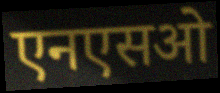
एनएसओ